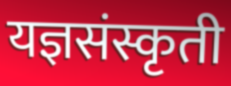
यज्ञसंस्कृती